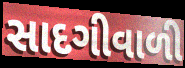
સાદગીવાળી